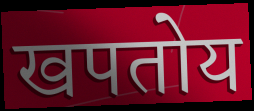
खपतोय